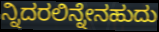
ನ್ನಿದರಲಿನ್ನೇನಹುದು